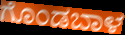
ಗೊಂಡಬಾಳ